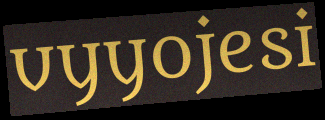
uyyojesi